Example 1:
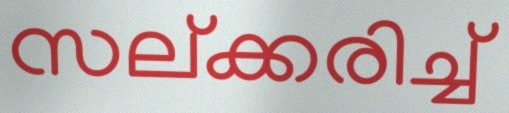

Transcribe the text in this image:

സല്ക്കരിച്ച്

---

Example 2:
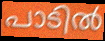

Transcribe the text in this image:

പാടിൽ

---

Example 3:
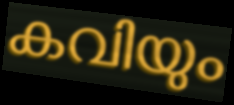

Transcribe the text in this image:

കവിയും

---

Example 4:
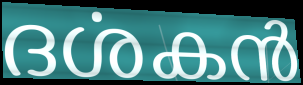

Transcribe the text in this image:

ദൎശകൻ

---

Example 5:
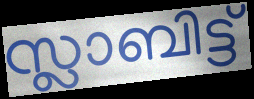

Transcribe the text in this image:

സ്ലാബിട്ട്